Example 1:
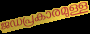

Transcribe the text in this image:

ജഡപ്രകാരമുള്ള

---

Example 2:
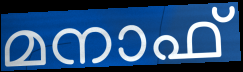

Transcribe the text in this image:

മനാഫ്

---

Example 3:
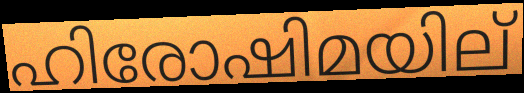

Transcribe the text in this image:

ഹിരോഷിമയില്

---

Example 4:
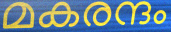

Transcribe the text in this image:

മകരന്ദം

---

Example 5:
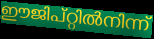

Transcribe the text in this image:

ഈജിപ്റ്റിൽനിന്ന്